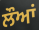
ਲੌਆਂ